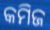
କମିଜ